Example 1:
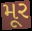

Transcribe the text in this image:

મૂર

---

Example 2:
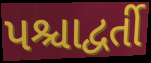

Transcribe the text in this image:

પશ્ચાદ્વર્તી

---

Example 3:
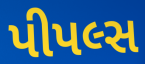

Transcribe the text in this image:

પીપલ્સ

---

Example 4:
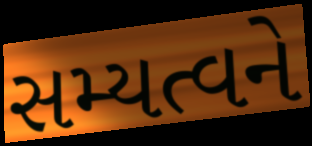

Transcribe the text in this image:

સમ્યત્વને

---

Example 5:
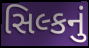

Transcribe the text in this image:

સિલ્કનું